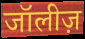
जॉलीज़